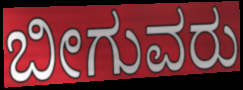
ಬೀಗುವರು